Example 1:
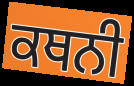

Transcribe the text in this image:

ਕਥਨੀ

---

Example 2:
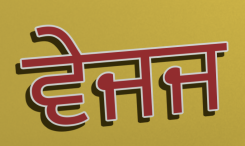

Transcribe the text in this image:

ਵੇਜਜ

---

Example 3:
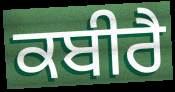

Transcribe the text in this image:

ਕਬੀਰੈ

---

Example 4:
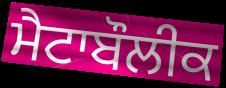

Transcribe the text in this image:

ਮੈਟਾਬੌਲੀਕ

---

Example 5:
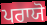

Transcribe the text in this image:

ਪਰਾਯੋ